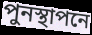
পুনস্থাপনে